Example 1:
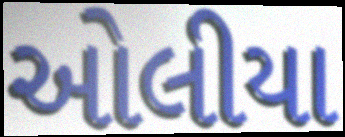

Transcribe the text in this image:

ઓલીયા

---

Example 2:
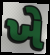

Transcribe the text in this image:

ખે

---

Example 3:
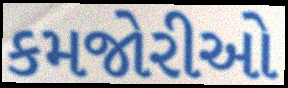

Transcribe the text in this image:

કમજોરીઓ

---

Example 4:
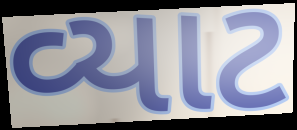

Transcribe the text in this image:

વ્યાટ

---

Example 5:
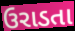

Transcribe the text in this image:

ઉરાડતા